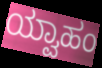
ಯ್ವಾಹಂ